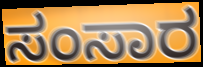
ಸಂಸಾರ